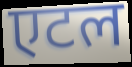
एटल